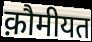
क़ौमीयत